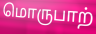
மொருபாற்